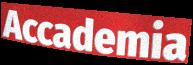
Accademia